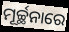
ମୂର୍ଚ୍ଛନାରେ